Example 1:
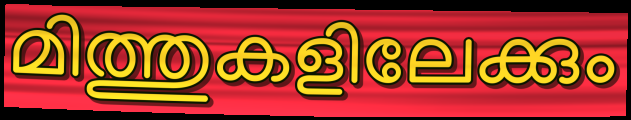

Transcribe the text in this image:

മിത്തുകളിലേക്കും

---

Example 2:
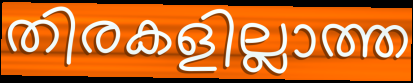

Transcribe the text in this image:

തിരകളില്ലാത്ത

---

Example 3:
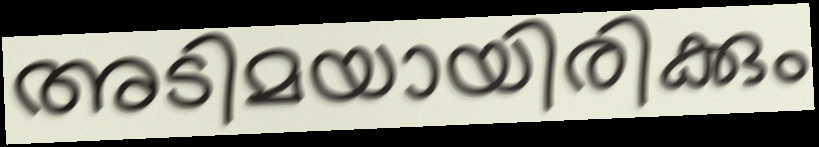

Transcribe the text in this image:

അടിമയായിരിക്കും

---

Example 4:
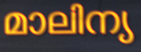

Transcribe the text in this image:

മാലിന്യ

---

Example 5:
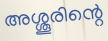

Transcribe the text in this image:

അശ്ശൂരിന്റെ